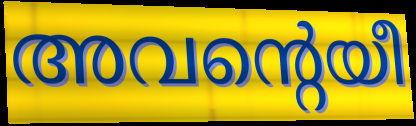
അവന്റെയീ